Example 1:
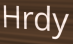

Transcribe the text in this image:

Hrdy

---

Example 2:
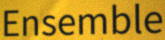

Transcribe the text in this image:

Ensemble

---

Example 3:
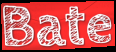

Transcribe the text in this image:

Bate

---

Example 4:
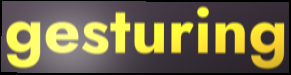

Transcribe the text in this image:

gesturing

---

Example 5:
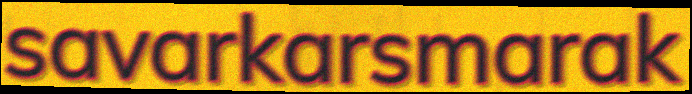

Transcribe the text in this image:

savarkarsmarak